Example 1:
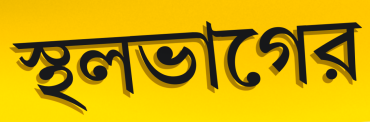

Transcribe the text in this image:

স্থলভাগের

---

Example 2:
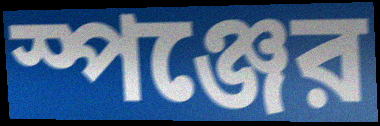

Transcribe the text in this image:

স্পঞ্জের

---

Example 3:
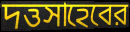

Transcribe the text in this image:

দত্তসাহেবের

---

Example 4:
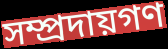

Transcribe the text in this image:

সম্প্রদায়গণ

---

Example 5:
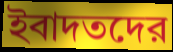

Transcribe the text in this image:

ইবাদতদের